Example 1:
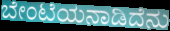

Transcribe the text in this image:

ಬೇಂಟೆಯನಾಡಿದೆನು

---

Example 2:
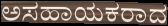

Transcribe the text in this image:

ಅಸಹಾಯಕರಾದ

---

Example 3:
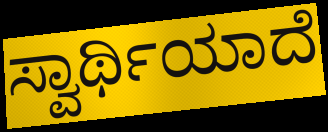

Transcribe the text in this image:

ಸ್ವಾರ್ಥಿಯಾದೆ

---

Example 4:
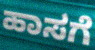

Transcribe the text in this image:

ಹಾಸಗೆ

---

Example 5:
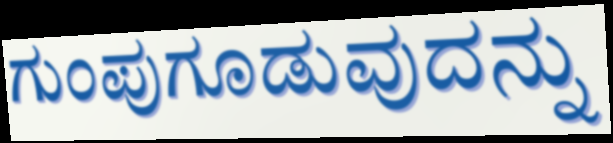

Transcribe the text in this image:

ಗುಂಪುಗೂಡುವುದನ್ನು